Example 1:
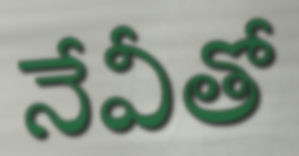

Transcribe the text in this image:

నేవీతో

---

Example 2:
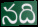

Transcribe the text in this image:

నది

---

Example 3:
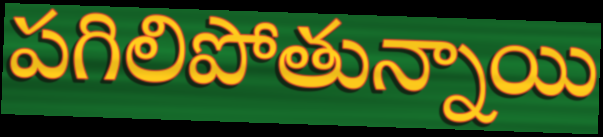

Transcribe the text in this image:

పగిలిపోతున్నాయి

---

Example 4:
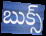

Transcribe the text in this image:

బుక్స్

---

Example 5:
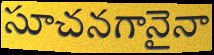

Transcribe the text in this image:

సూచనగానైనా